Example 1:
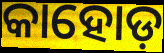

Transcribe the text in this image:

କାହୋଡ଼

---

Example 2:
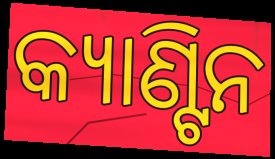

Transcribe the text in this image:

କ୍ୟାଣ୍ଟିନ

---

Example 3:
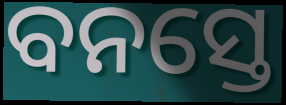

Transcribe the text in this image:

ବନସ୍ତେ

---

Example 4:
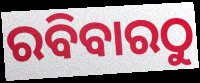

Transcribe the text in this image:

ରବିବାରଠୁ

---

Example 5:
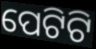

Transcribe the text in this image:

ପେଟିଟି